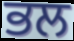
ਭਲ